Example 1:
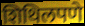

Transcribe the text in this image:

शिथिलपणे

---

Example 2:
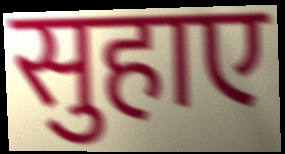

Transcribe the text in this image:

सुहाए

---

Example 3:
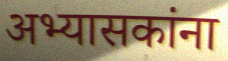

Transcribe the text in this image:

अभ्यासकांना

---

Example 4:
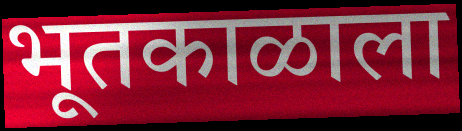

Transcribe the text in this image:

भूतकाळाला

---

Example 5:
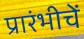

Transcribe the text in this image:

प्रारंभीचें